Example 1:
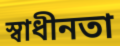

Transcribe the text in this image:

স্বাধীনতা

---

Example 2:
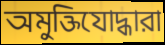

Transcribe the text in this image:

অমুক্তিযোদ্ধারা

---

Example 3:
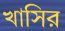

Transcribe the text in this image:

খাসির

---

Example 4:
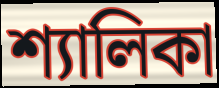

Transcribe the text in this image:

শ্যালিকা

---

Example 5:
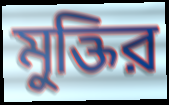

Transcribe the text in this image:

মুক্তির